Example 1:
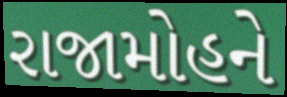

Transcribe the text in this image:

રાજામોહને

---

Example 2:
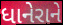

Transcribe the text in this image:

ધાનેરાને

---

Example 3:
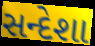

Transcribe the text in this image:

સન્દેશા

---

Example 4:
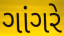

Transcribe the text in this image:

ગાંગરે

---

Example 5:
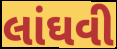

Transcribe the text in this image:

લાંઘવી